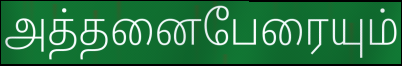
அத்தனைபேரையும்